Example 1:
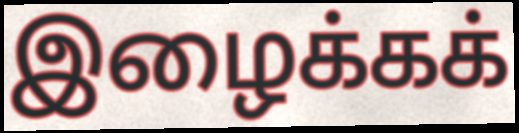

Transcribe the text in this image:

இழைக்கக்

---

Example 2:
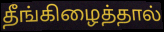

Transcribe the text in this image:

தீங்கிழைத்தால்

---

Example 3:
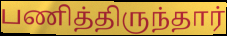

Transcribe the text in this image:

பணித்திருந்தார்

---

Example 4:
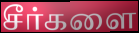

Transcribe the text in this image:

சீர்களை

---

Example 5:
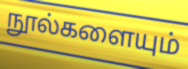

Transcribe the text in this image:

நூல்களையும்